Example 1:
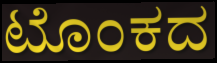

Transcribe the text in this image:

ಟೊಂಕದ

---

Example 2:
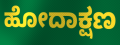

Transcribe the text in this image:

ಹೋದಾಕ್ಷಣ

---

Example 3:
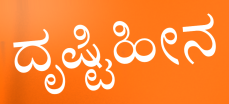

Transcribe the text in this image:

ದೃಷ್ಟಿಹೀನ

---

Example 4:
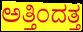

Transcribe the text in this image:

ಅತ್ತಿಂದತ್ತ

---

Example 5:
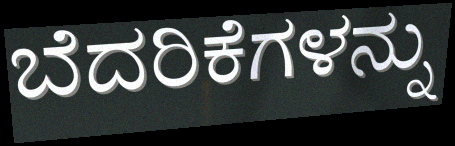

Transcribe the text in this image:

ಬೆದರಿಕೆಗಳನ್ನು